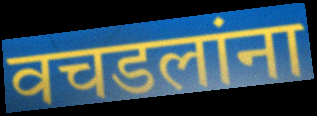
वचडलांना